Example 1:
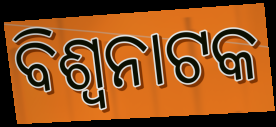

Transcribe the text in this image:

ବିଶ୍ୱନାଟକ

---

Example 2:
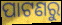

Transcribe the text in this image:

ପାଟଣରୁ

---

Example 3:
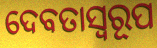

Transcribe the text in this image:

ଦେବତାସ୍ୱରୂପ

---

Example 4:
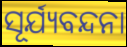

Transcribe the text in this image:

ସୂର୍ଯ୍ୟବନ୍ଦନା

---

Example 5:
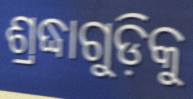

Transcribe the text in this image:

ଶ୍ରଦ୍ଧାଗୁଡ଼ିକୁ